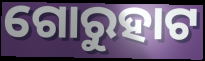
ଗୋରୁହାଟ